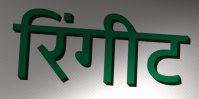
रिंगीट